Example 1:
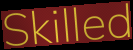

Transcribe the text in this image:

Skilled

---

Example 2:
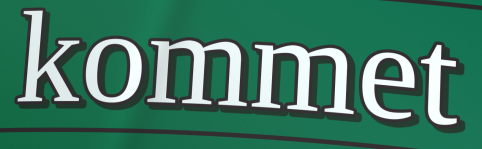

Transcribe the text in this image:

kommet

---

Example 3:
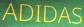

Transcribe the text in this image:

ADIDAS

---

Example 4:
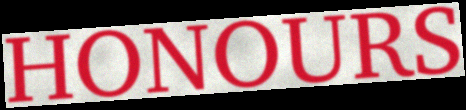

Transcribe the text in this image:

HONOURS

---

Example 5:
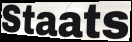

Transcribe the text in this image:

Staats